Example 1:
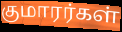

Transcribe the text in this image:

குமாரர்கள்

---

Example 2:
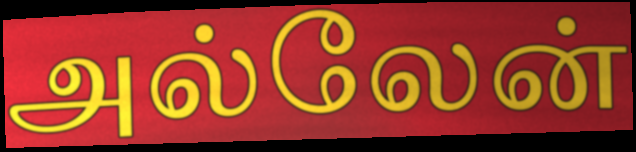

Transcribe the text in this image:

அல்லேன்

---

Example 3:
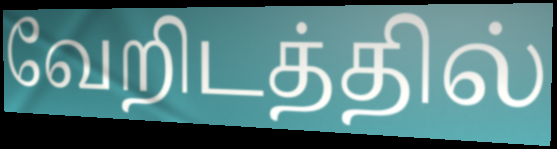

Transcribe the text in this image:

வேறிடத்தில்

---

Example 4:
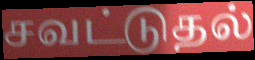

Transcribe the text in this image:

சவட்டுதல்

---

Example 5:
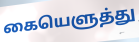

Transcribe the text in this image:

கையெளுத்து